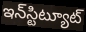
ఇన్‌స్టిట్యూట్